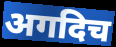
अगदिच